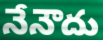
నేనౌదు